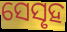
ସେସୃହ